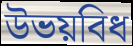
উভয়বিধ